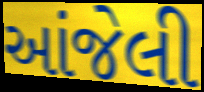
આંજેલી